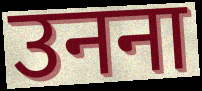
उनना